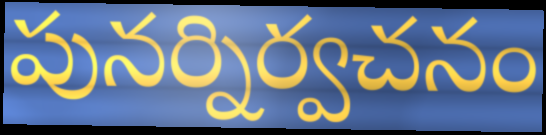
పునర్నిర్వచనం